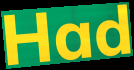
Had